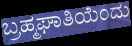
ಬ್ರಹ್ಮಘಾತಿಯೆಂದು